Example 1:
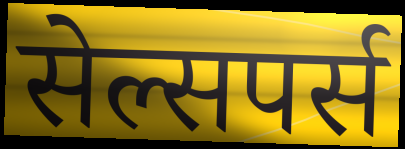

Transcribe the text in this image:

सेल्सपर्स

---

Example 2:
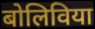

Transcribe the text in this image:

बोलिविया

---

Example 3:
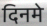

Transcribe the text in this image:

दिनमे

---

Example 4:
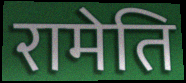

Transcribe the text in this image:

रामेति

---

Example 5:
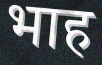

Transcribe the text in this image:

भाह